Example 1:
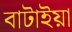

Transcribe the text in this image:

বাটাইয়া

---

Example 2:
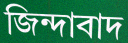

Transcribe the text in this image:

জিন্দাবাদ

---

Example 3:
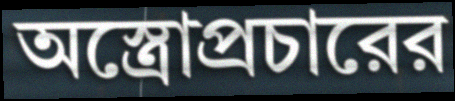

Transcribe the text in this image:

অস্ত্রোপ্রচারের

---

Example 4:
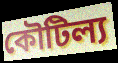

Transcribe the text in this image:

কৌটিল্য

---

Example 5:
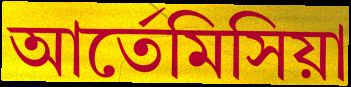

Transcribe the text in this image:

আর্তেমিসিয়া